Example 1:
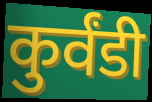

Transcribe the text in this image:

कुर्वंडी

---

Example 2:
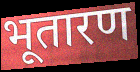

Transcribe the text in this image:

भूतारण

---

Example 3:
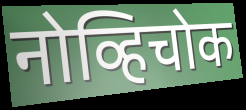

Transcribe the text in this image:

नोव्हिचोक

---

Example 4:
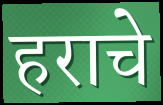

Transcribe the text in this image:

हराचे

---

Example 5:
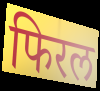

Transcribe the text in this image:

फिरल